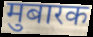
मुबारक